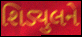
શિડ્યુલને